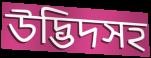
উদ্ভিদসহ